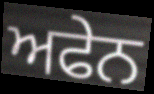
ਅਫੇਨ